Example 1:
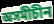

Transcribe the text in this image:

অসমীচীন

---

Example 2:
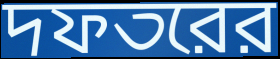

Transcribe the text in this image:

দফতরের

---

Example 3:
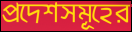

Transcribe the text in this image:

প্রদেশসমূহের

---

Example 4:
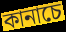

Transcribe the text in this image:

কানাচে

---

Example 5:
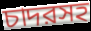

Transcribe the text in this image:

চাদরসহ